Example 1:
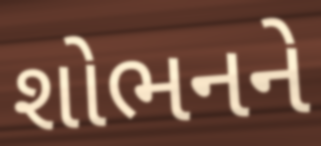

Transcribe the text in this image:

શોભનને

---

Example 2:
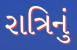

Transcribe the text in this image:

રાત્રિનું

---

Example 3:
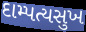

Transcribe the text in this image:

દામ્પત્યસુખ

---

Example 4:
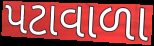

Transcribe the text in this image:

પટાવાળા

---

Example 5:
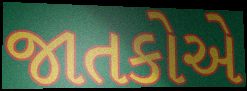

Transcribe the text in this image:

જાતકોએ